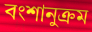
বংশানুক্রম